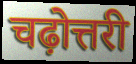
चढ़ोत्तरी